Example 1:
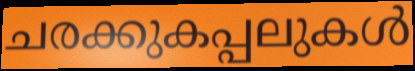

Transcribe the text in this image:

ചരക്കുകപ്പലുകൾ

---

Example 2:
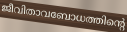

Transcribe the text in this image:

ജീവിതാവബോധത്തിന്റെ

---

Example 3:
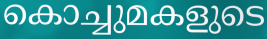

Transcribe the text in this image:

കൊച്ചുമകളുടെ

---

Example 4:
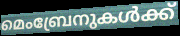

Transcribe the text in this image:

മെംബ്രേനുകൾക്ക്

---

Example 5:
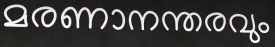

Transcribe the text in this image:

മരണാനന്തരവും